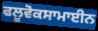
ਫਲੂਵੋਕਸਾਮਾਈਨ